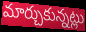
మార్చుకున్నట్లు